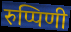
रुप्पिणी